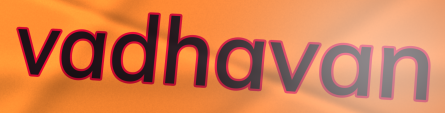
vadhavan